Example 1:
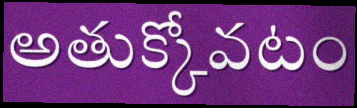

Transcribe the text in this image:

అతుక్కోవటం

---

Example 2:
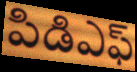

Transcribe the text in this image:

పిడిఎఫ్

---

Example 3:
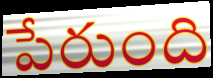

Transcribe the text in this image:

పేరుంది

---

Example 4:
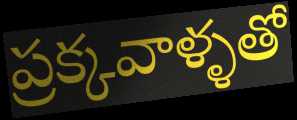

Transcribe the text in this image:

ప్రక్కవాళ్ళతో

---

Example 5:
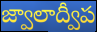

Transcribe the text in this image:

జ్వాలాద్వీప